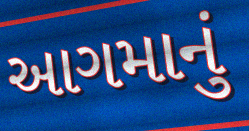
આગમાનું